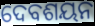
ଦେବଶୟନ